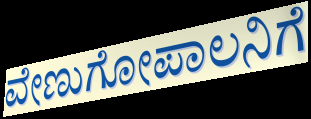
ವೇಣುಗೋಪಾಲನಿಗೆ